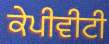
ਕੇਪੀਵੀਟੀ